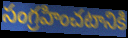
సంగ్రహించటానికి